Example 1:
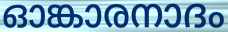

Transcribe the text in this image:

ഓങ്കാരനാദം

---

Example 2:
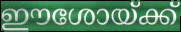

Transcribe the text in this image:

ഈശോയ്ക്ക്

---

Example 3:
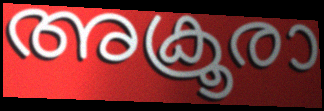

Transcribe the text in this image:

അക്രൂരാ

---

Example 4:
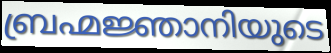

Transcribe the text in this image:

ബ്രഹ്മജ്ഞാനിയുടെ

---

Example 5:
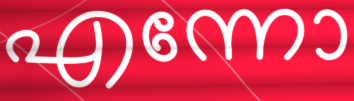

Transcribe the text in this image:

എന്നോ